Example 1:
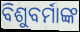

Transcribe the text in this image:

ବିଶୁବର୍ମାଙ୍କ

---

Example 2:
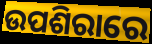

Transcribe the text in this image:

ଉପଶିରାରେ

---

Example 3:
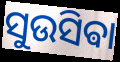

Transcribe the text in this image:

ସୁଉସିଵା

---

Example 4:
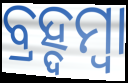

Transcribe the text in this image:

ବ୍ରହ୍ଦମ୍ବା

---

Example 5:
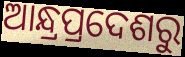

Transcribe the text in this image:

ଆନ୍ଧ୍ରପ୍ରଦେଶରୁ